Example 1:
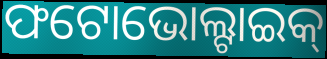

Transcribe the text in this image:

ଫଟୋଭୋଲ୍ଟାଇକ୍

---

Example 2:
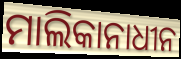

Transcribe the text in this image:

ମାଲିକାନାଧୀନ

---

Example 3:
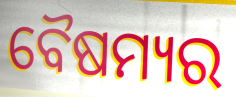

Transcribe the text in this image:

ବୈଷମ୍ଯର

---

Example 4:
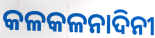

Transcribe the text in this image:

କଳକଳନାଦିନୀ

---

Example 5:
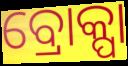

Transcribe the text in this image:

ବ୍ରୋକ୍ପା